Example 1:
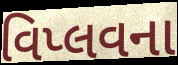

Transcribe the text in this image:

વિપ્લવના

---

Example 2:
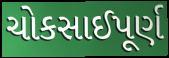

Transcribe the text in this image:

ચોકસાઈપૂર્ણ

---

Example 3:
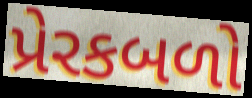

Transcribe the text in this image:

પ્રેરકબળો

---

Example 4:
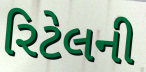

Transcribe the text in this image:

રિટેલની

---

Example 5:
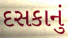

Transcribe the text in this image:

દસકાનું